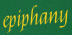
epiphany